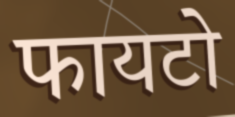
फायटो